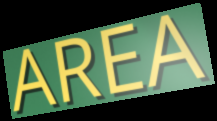
AREA